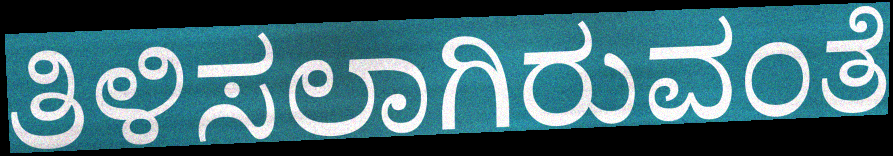
ತಿಳಿಸಲಾಗಿರುವಂತೆ